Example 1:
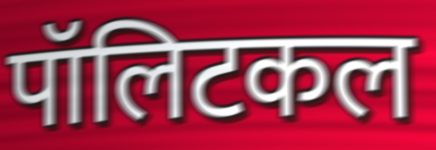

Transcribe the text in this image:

पॉलिटकल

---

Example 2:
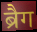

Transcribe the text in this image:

ब्रैग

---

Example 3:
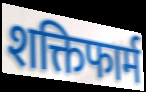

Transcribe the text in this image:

शक्तिफार्म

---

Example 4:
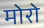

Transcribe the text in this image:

मोरो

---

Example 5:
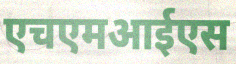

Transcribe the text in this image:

एचएमआईएस